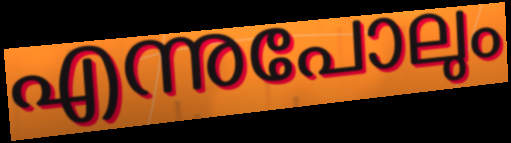
എന്നുപോലും